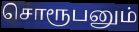
சொரூபனும்